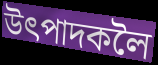
উৎপাদকলৈ